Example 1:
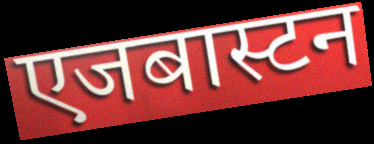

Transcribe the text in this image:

एजबास्टन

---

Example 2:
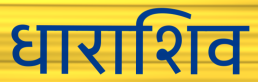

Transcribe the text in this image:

धाराशिव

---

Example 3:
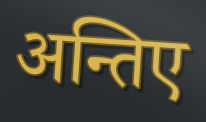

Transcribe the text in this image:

अन्तिए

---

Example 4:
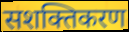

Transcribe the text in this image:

सशक्तिकरण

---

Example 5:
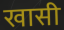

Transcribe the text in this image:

खासी